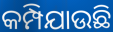
କମ୍ପିଯାଉଛି